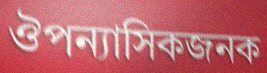
ঔপন্যাসিকজনক